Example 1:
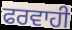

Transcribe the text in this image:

ਫਰਵਾਹੀ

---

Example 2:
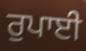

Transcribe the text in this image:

ਰੁਪਾਈ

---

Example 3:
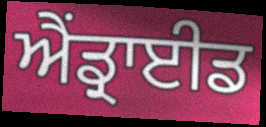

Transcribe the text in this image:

ਐਂਡ੍ਰਾਈਡ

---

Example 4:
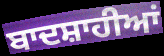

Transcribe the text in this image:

ਬਾਦਸ਼ਾਹੀਆਂ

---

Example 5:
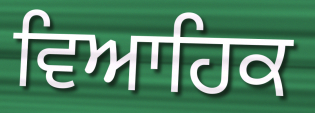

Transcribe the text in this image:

ਵਿਆਹਿਕ